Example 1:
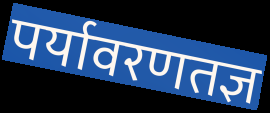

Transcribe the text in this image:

पर्यावरणतज्ञ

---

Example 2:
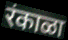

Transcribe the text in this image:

रंकाळा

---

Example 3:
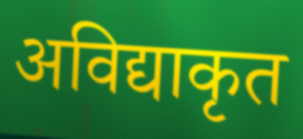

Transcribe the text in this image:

अविद्याकृत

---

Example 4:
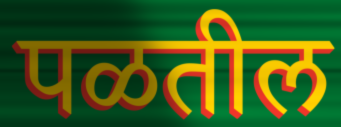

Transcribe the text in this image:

पळतील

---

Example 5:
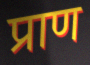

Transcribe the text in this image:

प्राण